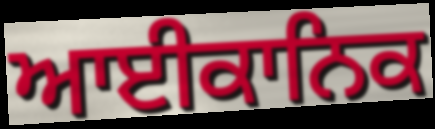
ਆਈਕਾਨਿਕ